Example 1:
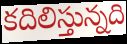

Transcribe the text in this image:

కదిలిస్తున్నది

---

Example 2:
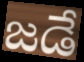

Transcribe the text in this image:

జడే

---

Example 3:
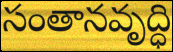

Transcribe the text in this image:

సంతానవృద్ధి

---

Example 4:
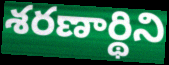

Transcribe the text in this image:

శరణార్థిని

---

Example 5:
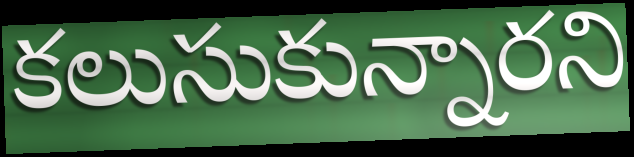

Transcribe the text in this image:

కలుసుకున్నారని